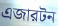
এজারটন